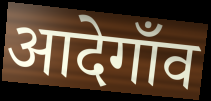
आदेगाँव